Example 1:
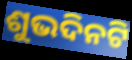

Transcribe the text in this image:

ଶୁଭଦିନଟି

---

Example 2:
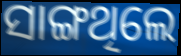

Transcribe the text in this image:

ସାଙ୍ଗଥିଲେ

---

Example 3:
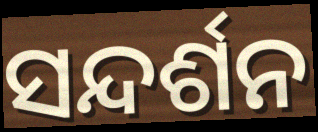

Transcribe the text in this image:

ସନ୍ଦର୍ଶନ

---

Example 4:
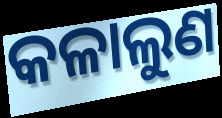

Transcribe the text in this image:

କଳାଲୁଣ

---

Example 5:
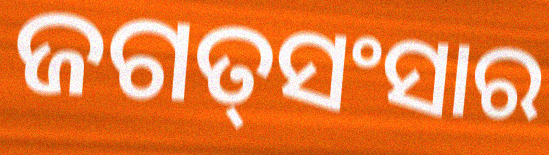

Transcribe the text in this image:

ଜଗତ୍‌ସଂସାର